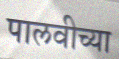
पालवीच्या